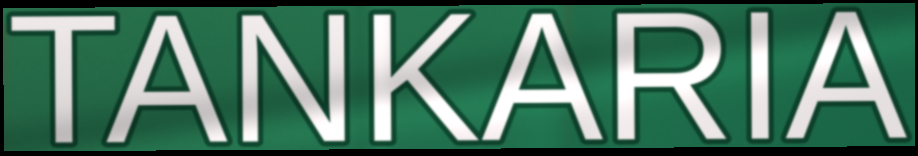
TANKARIA